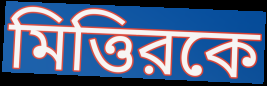
মিত্তিরকে